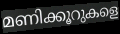
മണിക്കൂറുകളെ